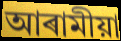
আৰামীয়া